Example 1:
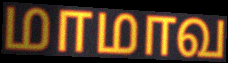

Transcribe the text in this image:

மாமாவ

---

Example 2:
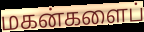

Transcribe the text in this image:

மகன்களைப்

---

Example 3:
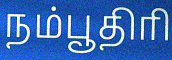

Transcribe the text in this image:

நம்பூதிரி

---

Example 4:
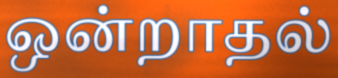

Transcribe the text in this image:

ஒன்றாதல்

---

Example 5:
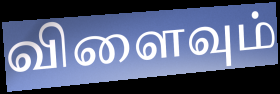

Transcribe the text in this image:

விளைவும்